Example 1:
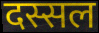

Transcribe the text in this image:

दस्सल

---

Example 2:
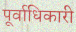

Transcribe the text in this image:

पूर्वाधिकारी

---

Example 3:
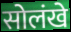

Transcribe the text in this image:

सोलंखे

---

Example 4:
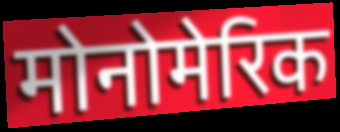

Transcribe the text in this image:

मोनोमेरिक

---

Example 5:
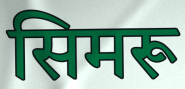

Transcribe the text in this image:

सिमरू